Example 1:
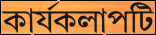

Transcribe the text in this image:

কার্যকলাপটি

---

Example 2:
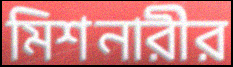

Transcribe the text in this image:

মিশনারীর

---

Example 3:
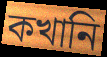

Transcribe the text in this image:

কখানি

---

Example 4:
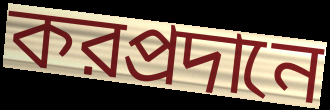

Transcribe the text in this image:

করপ্রদানে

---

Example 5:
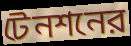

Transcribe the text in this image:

টেনশনের